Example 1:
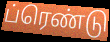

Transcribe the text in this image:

ப்ரெண்டு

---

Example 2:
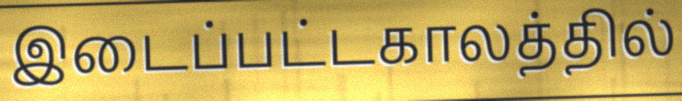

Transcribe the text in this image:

இடைப்பட்டகாலத்தில்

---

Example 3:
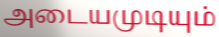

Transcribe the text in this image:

அடையமுடியும்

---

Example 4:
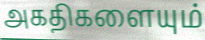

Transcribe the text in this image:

அகதிகளையும்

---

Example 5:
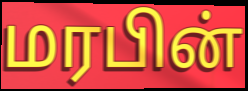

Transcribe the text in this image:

மரபின்